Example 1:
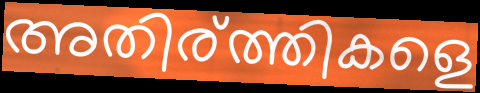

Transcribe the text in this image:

അതിര്ത്തികളെ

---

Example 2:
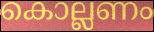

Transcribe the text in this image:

കൊല്ലണം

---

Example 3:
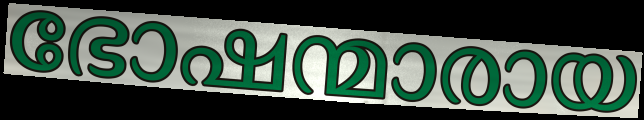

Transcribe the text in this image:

ഭോഷന്മാരായ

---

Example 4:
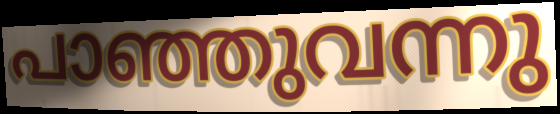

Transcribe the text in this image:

പാഞ്ഞുവന്നു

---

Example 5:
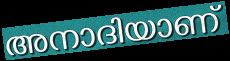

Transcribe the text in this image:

അനാദിയാണ്